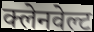
क्लेनवेल्ट